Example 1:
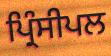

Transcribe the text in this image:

ਪ੍ਰਿੰਸੀਪਲ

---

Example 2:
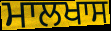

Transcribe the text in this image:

ਮਾਲਖਾਸ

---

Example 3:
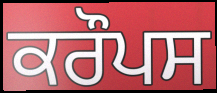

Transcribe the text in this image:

ਕਰੌਪਸ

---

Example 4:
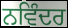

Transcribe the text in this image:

ਨਵਿੰਦਰ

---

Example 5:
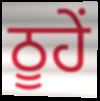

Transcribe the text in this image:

ਠੂਹੇਂ